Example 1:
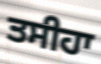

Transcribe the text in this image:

ਤਸੀਹਾ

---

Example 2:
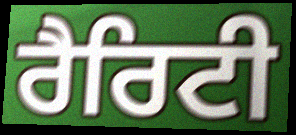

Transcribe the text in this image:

ਰੈਰਿਟੀ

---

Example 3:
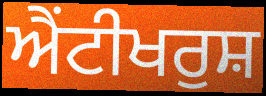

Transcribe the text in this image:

ਐਂਟੀਖਰੁਸ਼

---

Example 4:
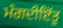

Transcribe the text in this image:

ਮੰਗਦੀਇੱਤੂ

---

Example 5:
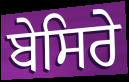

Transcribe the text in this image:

ਬੇਸਿਰੇ